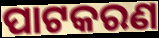
ପାଟକରଣ